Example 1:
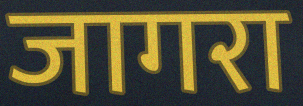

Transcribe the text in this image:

जागरा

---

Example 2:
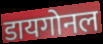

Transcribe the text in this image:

डायगोनल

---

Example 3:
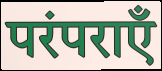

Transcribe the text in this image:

परंपराएँ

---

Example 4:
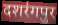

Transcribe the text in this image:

दशरंगपुर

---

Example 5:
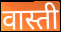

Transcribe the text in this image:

वास्ती